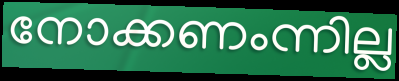
നോക്കണംന്നില്ല